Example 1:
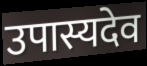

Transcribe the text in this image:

उपास्यदेव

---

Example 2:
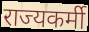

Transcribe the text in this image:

राज्यकर्मी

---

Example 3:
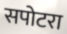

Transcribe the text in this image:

सपोटरा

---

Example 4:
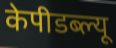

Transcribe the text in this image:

केपीडब्ल्यू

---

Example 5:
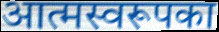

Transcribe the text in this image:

आत्मस्वरूपका